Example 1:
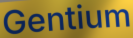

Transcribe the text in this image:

Gentium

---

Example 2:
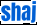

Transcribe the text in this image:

shaj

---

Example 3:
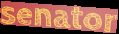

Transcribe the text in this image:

senator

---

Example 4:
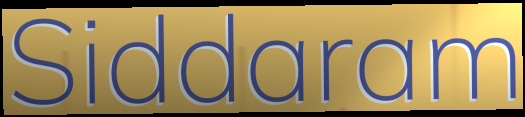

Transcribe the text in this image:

Siddaram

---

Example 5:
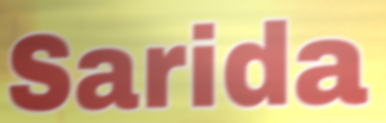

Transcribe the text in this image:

Sarida